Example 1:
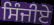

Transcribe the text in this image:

ਸਿੰਜੀਏ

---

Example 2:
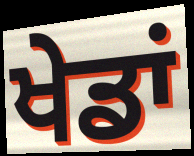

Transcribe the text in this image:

ਖੇਡਾਂ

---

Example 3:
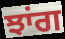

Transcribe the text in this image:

ਝਾਂਗ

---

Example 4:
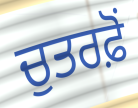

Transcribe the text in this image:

ਚੁਤਰਫ਼ੋਂ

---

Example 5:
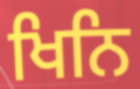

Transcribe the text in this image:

ਖਿਨਿ